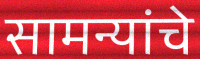
सामन्यांचे